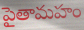
పైతామహం